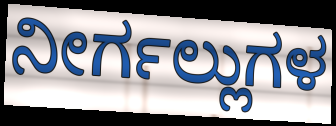
ನೀರ್ಗಲ್ಲುಗಳ